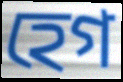
হেগ